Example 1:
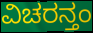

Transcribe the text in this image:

ವಿಚರನ್ತಂ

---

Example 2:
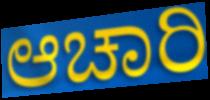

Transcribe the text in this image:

ಆಚಾರಿ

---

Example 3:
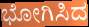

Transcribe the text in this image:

ಭೋಗಿಸಿದ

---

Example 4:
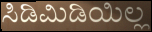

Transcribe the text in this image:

ಸಿಡಿಮಿಡಿಯಿಲ್ಲ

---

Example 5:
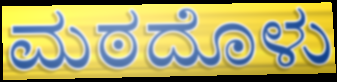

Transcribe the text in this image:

ಮಠದೊಳು